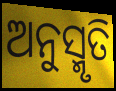
ଅନୁସ୍ମୃତି